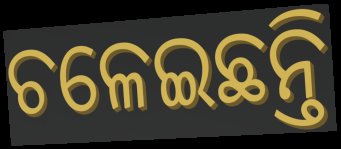
ଚଳେଇଛନ୍ତି